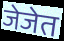
जेजेत